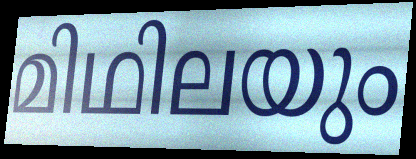
മിഥിലയും